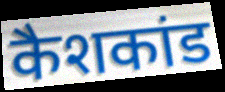
कैशकांड